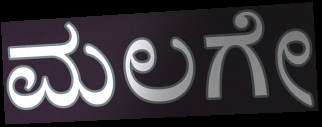
ಮಲಗೇ